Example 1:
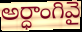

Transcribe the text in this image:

అర్ధాంగివై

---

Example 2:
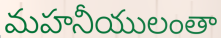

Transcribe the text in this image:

మహనీయులంతా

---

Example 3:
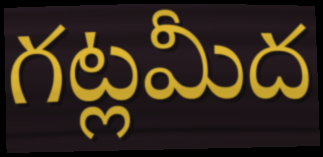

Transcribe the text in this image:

గట్లమీద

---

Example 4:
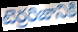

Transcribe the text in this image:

టెర్రరిజానికి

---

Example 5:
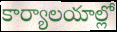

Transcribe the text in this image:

కార్యాలయాల్లో